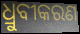
ଧ୍ରୁବୀକରଣ